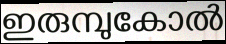
ഇരുമ്പുകോൽ